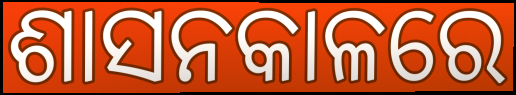
ଶାସନକାଳରେ